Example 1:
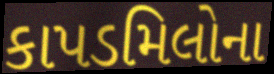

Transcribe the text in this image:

કાપડમિલોના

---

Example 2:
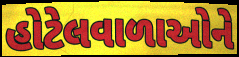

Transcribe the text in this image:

હોટેલવાળાઓને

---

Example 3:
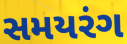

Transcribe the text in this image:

સમયરંગ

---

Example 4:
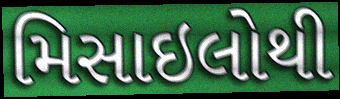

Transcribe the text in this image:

મિસાઇલોથી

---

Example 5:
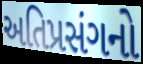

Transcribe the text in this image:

અતિપ્રસંગનો